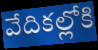
వేదికల్లోకి